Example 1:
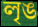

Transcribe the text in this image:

লৃঙ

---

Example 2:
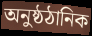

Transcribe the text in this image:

অনুষ্ঠঠানিক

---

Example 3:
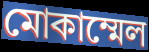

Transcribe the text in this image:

মোকাম্মেল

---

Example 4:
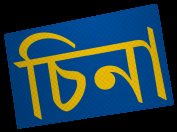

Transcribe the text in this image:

চিনা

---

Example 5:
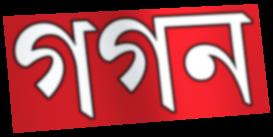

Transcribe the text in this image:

গগন